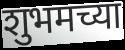
शुभमच्या